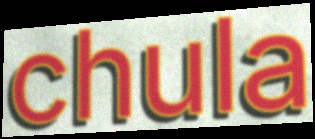
chula